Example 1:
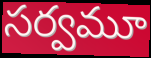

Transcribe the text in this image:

సర్వమూ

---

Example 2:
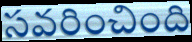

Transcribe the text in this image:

సవరించింది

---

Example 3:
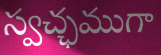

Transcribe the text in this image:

స్వచ్ఛముగా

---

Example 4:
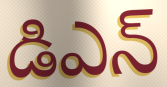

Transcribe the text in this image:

డిఎన్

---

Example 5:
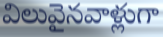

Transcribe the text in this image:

విలువైనవాళ్లుగా